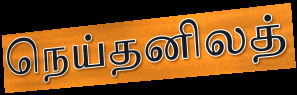
நெய்தனிலத்